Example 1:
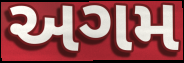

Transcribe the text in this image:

અગમ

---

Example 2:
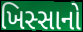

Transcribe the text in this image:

ખિસ્સાનો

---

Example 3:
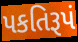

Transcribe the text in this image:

પકતિરૂપં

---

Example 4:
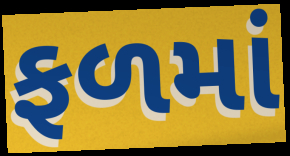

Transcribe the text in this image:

ફળમાં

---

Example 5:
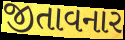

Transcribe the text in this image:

જીતાવનાર